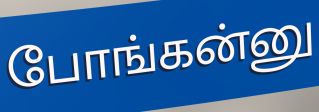
போங்கன்னு